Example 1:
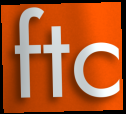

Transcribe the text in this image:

ftc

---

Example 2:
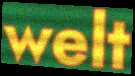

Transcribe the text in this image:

welt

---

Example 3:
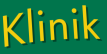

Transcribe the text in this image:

Klinik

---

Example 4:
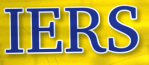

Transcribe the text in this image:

IERS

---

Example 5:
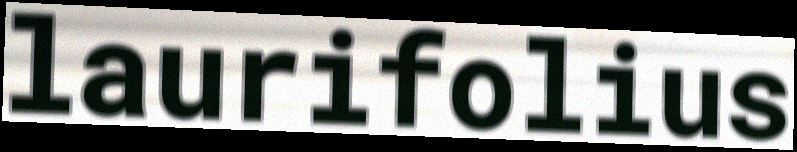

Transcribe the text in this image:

laurifolius